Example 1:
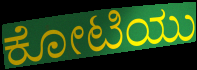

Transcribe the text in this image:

ಕೋಟಿಯು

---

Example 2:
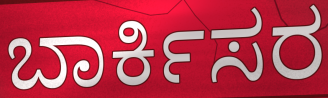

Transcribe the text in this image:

ಬಾರ್ಕಿಸರ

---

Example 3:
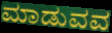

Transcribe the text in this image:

ಮಾಡುವವ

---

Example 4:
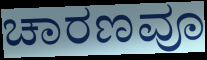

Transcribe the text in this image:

ಚಾರಣವೂ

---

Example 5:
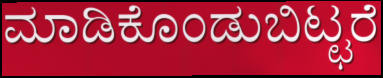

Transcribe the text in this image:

ಮಾಡಿಕೊಂಡುಬಿಟ್ಟರೆ